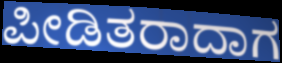
ಪೀಡಿತರಾದಾಗ